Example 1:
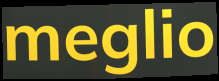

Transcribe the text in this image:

meglio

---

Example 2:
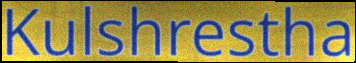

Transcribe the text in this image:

Kulshrestha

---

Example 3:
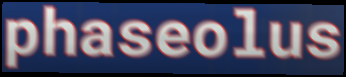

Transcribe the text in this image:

phaseolus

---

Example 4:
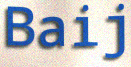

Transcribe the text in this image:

Baij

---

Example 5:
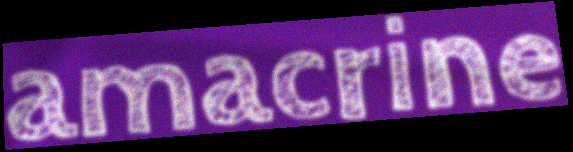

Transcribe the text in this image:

amacrine